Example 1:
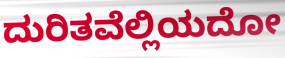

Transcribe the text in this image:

ದುರಿತವೆಲ್ಲಿಯದೋ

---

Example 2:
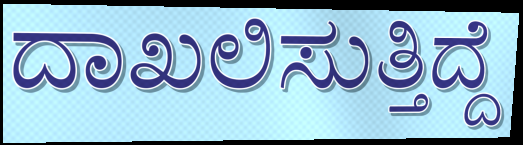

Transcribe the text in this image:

ದಾಖಲಿಸುತ್ತಿದ್ದೆ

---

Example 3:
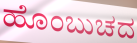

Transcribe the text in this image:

ಹೊಂಬುಚದ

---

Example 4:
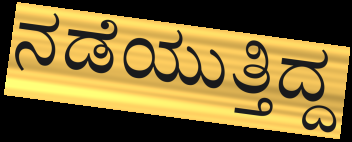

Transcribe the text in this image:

ನಡೆಯುತ್ತಿದ್ದ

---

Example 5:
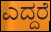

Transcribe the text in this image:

ಎದ್ದರೆ